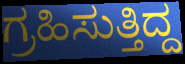
ಗ್ರಹಿಸುತ್ತಿದ್ದ